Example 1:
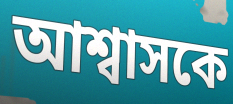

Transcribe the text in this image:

আশ্বাসকে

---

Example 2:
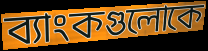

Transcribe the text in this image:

ব্যাংকগুলোকে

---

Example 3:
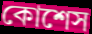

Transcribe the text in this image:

কোশেস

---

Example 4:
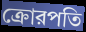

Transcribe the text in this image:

ক্রোরপতি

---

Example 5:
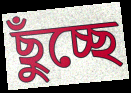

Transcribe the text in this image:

ছুঁচ্ছে